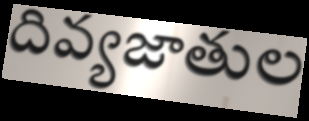
దివ్యజాతుల